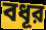
বধূর